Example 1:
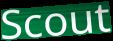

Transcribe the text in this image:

Scout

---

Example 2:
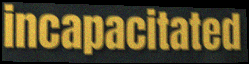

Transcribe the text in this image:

incapacitated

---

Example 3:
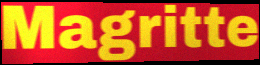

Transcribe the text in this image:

Magritte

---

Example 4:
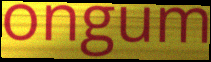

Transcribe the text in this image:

ongum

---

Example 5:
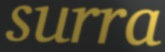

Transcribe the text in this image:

surra